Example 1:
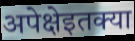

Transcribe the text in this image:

अपेक्षेइतक्या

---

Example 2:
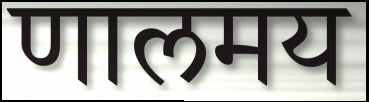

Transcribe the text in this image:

णालमय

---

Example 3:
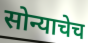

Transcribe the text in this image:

सोन्याचेच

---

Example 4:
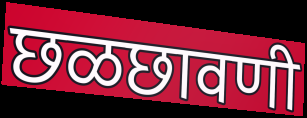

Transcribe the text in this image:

छळछावणी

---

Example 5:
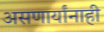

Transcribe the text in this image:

असणार्यांनाही